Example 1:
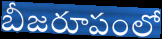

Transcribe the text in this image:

బీజరూపంలో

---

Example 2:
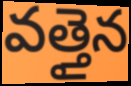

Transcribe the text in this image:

వత్తైన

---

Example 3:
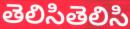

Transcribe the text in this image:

తెలిసితెలిసి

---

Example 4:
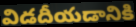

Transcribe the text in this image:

విడదీయడానికి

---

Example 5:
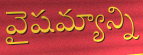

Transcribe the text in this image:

వైషమ్యాన్ని